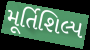
મૂર્તિશિલ્પ